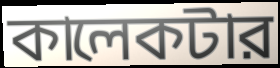
কালেকটার